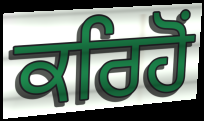
ਕਰਿਹੋਂ